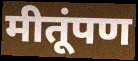
मीतूंपण